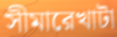
সীমারেখাটা